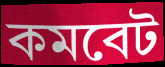
কমবেট